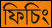
ফিচিং